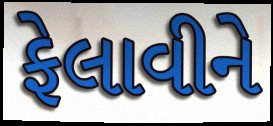
ફેલાવીને